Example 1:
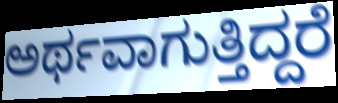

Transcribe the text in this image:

ಅರ್ಥವಾಗುತ್ತಿದ್ದರೆ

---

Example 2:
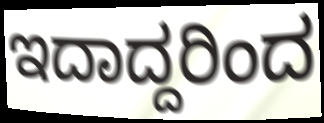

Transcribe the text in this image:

ಇದಾದ್ದರಿಂದ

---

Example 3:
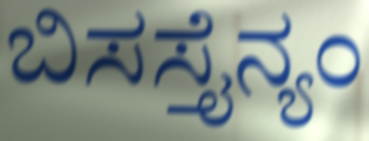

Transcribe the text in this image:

ಬಿಸಸ್ತೈನ್ಯಂ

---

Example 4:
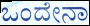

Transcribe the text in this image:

ಒಂದೇನಾ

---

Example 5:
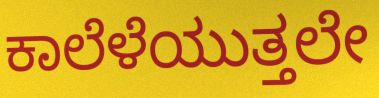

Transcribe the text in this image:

ಕಾಲೆಳೆಯುತ್ತಲೇ